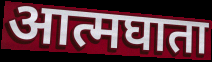
आत्मघाता